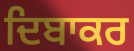
ਦਿਬਾਕਰ